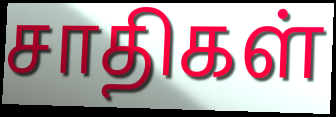
சாதிகள்